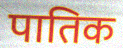
पातिक